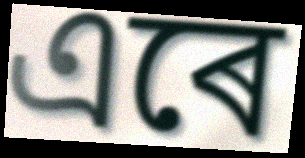
এৰে